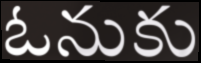
ఓనుకు